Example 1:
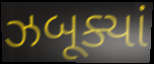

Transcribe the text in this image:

ઝબૂક્યાં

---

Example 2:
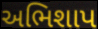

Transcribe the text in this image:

અભિશાપ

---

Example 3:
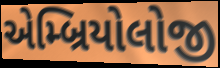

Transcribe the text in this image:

એમ્બ્રિયોલોજી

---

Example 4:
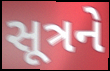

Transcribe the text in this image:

સૂત્રને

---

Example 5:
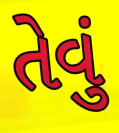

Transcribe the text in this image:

તેવું